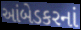
આંબેડકરનાં